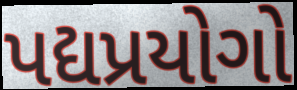
પદ્યપ્રયોગો